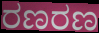
ರಣರಣ